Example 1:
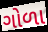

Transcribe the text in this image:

ગોળા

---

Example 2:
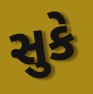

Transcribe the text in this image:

સુકે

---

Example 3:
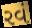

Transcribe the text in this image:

રવં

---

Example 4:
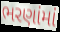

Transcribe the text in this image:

ભરણાંમાં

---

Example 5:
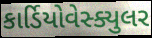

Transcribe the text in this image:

કાર્ડિયોવેસ્ક્યુલર